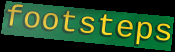
footsteps